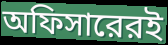
অফিসারেরই